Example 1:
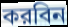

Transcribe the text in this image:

করবিন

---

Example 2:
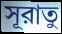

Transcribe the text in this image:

সূরাতু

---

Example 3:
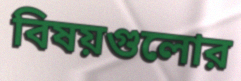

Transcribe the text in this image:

বিষয়গুলোর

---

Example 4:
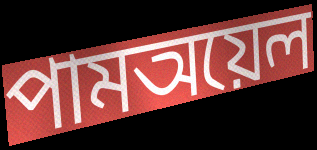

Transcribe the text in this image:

পামঅয়েল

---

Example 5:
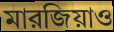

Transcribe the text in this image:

মারজিয়াও